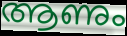
ആണും